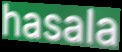
hasala